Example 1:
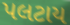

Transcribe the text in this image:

પલટાય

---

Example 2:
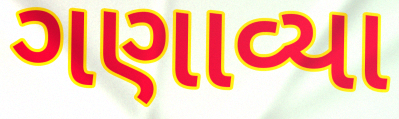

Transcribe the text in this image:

ગણાવ્યા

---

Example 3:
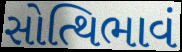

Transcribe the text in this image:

સોત્થિભાવં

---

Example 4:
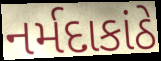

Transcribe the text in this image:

નર્મદાકાંઠે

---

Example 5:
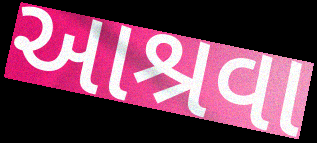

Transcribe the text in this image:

આશ્રવા